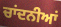
ਚਾਂਦਨੀਆਂ